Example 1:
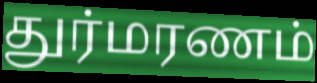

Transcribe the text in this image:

துர்மரணம்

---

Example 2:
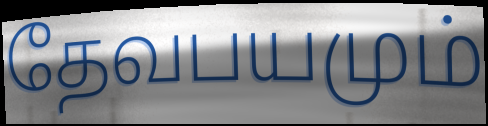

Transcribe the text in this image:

தேவபயமும்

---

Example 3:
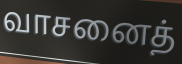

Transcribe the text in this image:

வாசனைத்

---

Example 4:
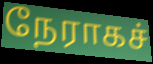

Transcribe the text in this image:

நேராகச்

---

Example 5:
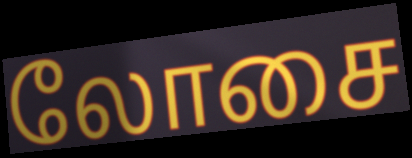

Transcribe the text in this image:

லோசை